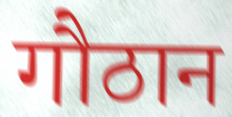
गौठान